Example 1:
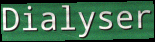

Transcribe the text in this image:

Dialyser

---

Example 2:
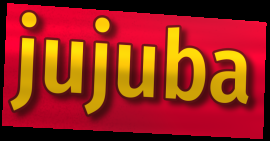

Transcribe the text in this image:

jujuba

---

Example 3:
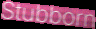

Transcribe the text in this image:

Stubborn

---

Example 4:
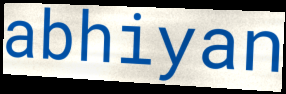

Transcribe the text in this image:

abhiyan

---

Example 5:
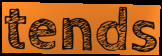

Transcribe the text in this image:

tends